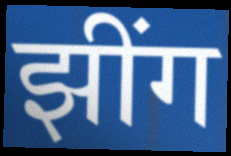
झींग